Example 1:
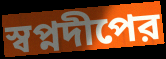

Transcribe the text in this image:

স্বপ্নদীপের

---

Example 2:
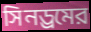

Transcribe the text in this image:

সিনড্রমের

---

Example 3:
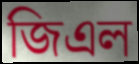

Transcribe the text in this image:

জিএল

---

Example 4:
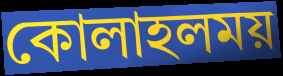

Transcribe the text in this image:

কোলাহলময়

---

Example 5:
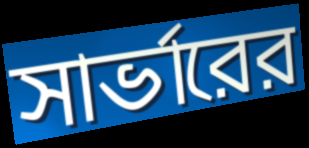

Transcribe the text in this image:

সার্ভারের